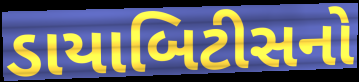
ડાયાબિટીસનો